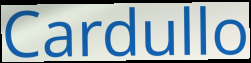
Cardullo